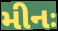
મીનઃ